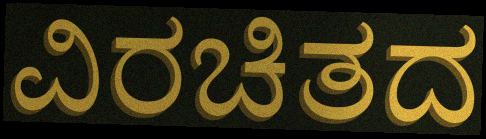
ವಿರಚಿತದ